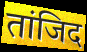
तांजिद